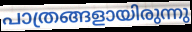
പാത്രങ്ങളായിരുന്നു